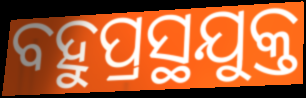
ବହୁପ୍ରସ୍ଥଯୁକ୍ତ